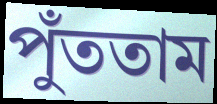
পুঁততাম